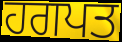
ਹਗਪਤ